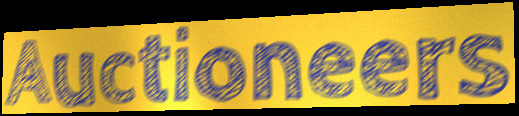
Auctioneers